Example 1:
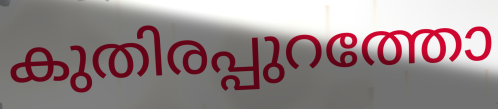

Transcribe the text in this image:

കുതിരപ്പുറത്തോ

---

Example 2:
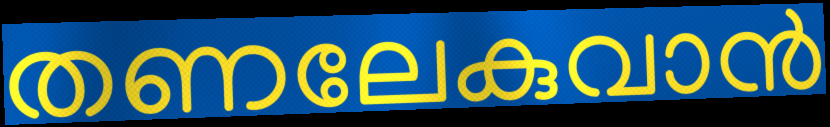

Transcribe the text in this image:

തണലേകുവാൻ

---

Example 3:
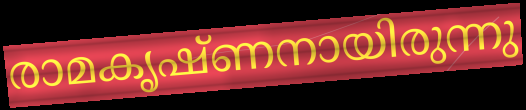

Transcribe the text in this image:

രാമകൃഷ്ണനായിരുന്നു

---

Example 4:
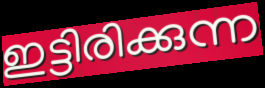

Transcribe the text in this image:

ഇട്ടിരിക്കുന്ന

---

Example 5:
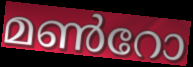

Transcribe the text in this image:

മൺറോ